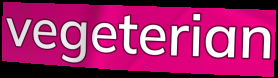
vegeterian